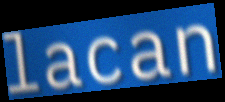
lacan